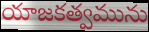
యాజకత్వమును